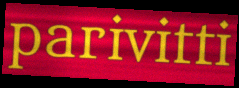
parivitti